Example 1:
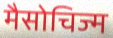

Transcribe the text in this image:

मैसोचिज्म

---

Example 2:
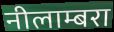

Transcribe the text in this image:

नीलाम्बरा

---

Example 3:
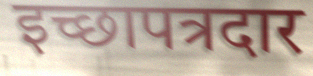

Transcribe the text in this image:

इच्छापत्रदार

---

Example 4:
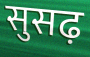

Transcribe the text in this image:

सुसढ़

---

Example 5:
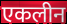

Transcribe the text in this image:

एकलीन